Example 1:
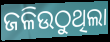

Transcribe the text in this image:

ଜଳିଉଠୁଥିଲା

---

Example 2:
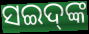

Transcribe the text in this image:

ସଇଦ୍‌ଙ୍କ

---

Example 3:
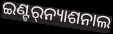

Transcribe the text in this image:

ଇଣ୍ଟର୍‌ନ୍ୟାଶନାଲ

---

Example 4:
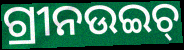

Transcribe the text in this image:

ଗ୍ରୀନଉଇଚ୍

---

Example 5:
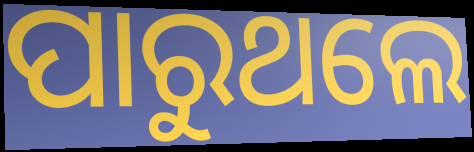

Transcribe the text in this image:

ପାରୁଥଲେ